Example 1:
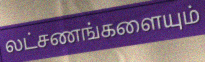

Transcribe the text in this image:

லட்சணங்களையும்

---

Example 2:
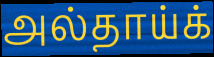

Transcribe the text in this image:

அல்தாய்க்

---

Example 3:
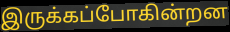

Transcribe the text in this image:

இருக்கப்போகின்றன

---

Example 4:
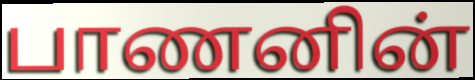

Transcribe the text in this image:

பாணனின்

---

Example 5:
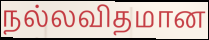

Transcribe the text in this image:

நல்லவிதமான